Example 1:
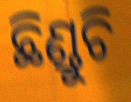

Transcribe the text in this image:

ଛିଣ୍ଡୁଚି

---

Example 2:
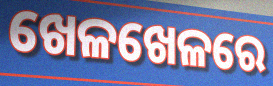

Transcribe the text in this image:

ଖେଳଖେଳରେ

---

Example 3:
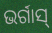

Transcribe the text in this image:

ଭର୍ଗାସ୍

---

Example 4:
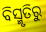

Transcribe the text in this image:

ବିସ୍ମୃତିରୁ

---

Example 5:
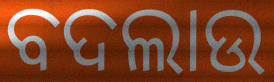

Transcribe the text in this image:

ବଦଲାଉ